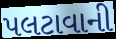
પલટાવાની